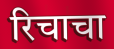
रिचाचा